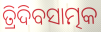
ତ୍ରିଦିବସାତ୍ମକ